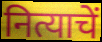
नित्याचें